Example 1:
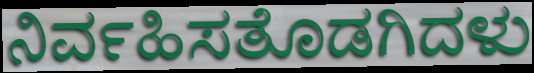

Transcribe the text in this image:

ನಿರ್ವಹಿಸತೊಡಗಿದಳು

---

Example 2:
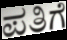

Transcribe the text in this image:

ಪತಿಗೆ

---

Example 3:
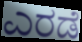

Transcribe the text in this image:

ಎರಡೆ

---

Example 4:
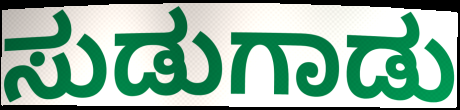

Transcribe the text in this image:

ಸುಡುಗಾಡು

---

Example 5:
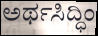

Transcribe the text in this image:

ಅರ್ಥಸಿದ್ಧಿಂ